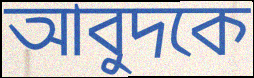
আবুদকে